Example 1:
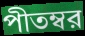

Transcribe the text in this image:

পীতম্বর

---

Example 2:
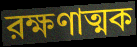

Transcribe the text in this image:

রক্ষণাত্মক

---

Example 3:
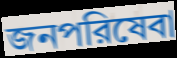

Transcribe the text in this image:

জনপরিষেবা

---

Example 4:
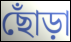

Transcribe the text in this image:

ছোঁড়া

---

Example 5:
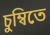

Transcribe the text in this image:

চুম্বিতে